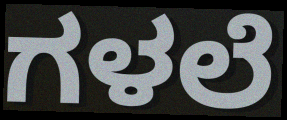
ಗಳಲೆ